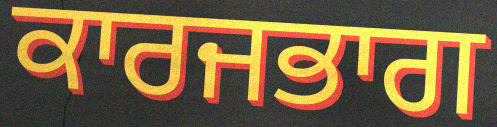
ਕਾਰਜਭਾਗ